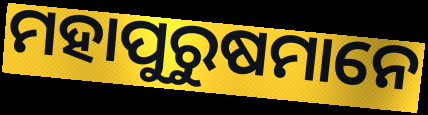
ମହାପୁରୁଷମାନେ